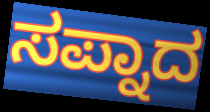
ಸಪ್ನಾದ